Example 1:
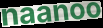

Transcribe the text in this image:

naanoo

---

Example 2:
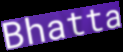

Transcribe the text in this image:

Bhatta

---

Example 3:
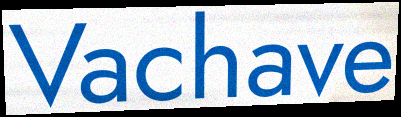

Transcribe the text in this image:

Vachave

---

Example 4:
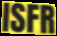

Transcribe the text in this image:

ISFR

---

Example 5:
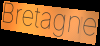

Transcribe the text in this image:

Bretagne